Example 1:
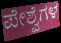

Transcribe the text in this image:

ಪೇಶ್ವೆಗಳ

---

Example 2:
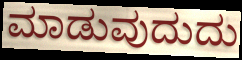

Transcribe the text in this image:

ಮಾಡುವುದುದು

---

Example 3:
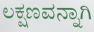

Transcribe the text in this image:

ಲಕ್ಷಣವನ್ನಾಗಿ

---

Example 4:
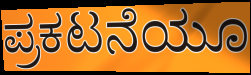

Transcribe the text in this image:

ಪ್ರಕಟನೆಯೂ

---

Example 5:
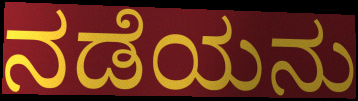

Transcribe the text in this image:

ನಡೆಯನು